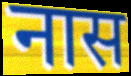
नास